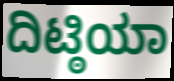
ದಿಟ್ಠಿಯಾ